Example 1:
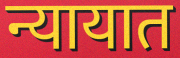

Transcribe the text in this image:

न्यायात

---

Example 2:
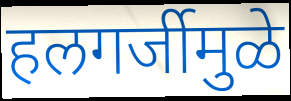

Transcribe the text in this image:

हलगर्जीमुळे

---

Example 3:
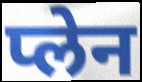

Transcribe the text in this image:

प्लेन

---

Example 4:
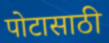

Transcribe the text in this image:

पोटासाठी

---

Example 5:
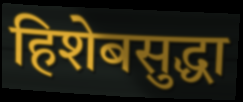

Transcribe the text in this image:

हिशेबसुद्धा